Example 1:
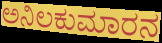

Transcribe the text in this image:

ಅನಿಲಕುಮಾರನ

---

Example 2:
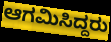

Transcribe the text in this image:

ಆಗಮಿಸಿದ್ದರು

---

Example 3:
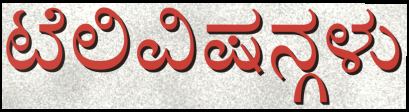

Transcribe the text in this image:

ಟೆಲಿವಿಷನ್ಗಳು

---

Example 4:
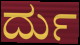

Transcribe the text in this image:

ರ್ದು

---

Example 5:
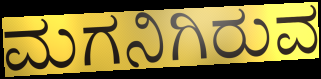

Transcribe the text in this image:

ಮಗನಿಗಿರುವ